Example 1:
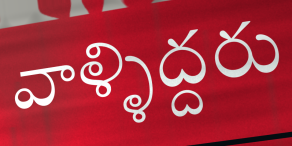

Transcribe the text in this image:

వాళ్ళిద్దరు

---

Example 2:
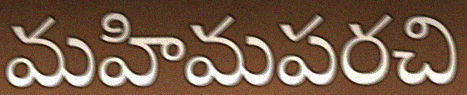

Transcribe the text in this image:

మహిమపరచి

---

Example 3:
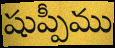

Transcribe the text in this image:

షుప్పీము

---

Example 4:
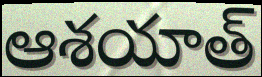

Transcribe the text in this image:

ఆశయాత్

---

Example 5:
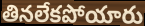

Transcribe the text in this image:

తినలేకపోయారు